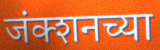
जंक्शनच्या